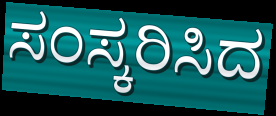
ಸಂಸ್ಕರಿಸಿದ